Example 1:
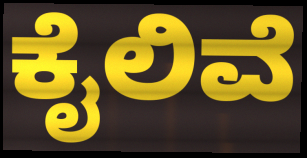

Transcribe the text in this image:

ಕೈಲಿವೆ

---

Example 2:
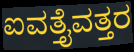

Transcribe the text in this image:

ಐವತ್ತೈವತ್ತರ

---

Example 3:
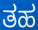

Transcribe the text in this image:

ತಹ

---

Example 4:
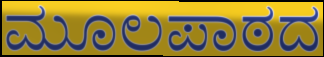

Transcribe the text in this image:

ಮೂಲಪಾಠದ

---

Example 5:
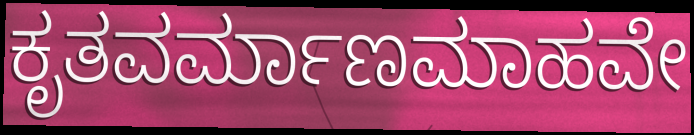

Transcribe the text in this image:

ಕೃತವರ್ಮಾಣಮಾಹವೇ